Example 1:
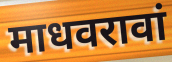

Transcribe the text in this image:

माधवरावां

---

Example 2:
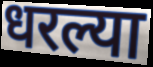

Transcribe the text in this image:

धरल्या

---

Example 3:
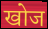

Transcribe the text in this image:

खोज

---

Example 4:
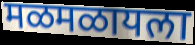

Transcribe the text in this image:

मळमळायला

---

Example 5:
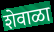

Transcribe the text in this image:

शेवाळा